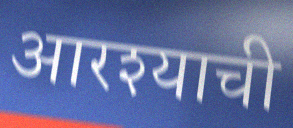
आरश्याची